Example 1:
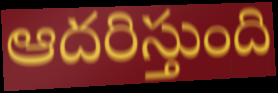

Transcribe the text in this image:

ఆదరిస్తుంది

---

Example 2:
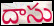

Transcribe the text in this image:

దాసు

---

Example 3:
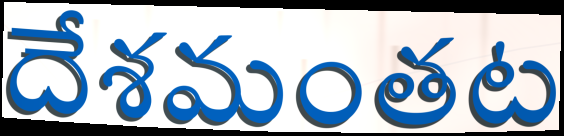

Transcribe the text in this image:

దేశమంతట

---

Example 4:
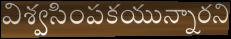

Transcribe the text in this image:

విశ్వసింపకయున్నారని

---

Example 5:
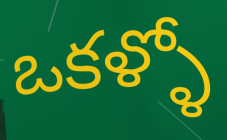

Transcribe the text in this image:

ఒకళ్ళో